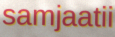
samjaatii